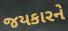
જયકારને